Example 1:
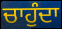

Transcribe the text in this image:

ਚਾਹੁੰਦਾ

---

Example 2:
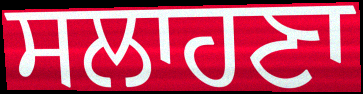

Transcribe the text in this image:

ਸਲਾਹਣਾ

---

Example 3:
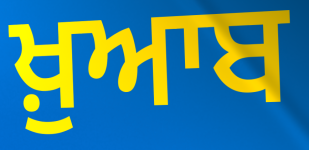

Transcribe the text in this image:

ਖ਼ੁਆਬ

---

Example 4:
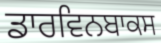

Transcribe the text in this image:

ਡਾਰਵਿਨਬਾਕਸ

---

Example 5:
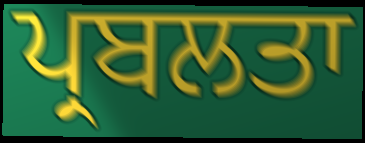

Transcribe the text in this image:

ਪ੍ਰਬਲਤਾ